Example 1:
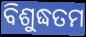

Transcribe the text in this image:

ବିଶୁଦ୍ଧତମ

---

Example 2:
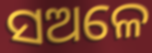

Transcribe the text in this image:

ସଅଳେ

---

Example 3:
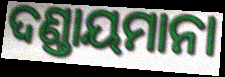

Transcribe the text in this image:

ଦଣ୍ଡାୟମାନା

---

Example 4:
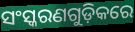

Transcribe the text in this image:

ସଂସ୍କରଣଗୁଡ଼ିକରେ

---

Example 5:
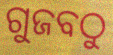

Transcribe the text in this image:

ଗୁଜବଠୁ